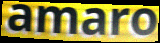
amaro